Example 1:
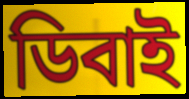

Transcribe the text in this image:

ডিবাই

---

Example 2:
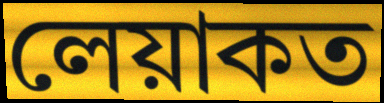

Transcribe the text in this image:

লেয়াকত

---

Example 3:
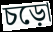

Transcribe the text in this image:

চড়ো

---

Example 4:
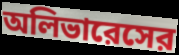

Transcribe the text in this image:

অলিভারেসের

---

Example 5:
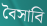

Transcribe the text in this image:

বৈসাবি